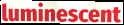
luminescent